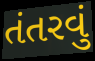
તંતરવું